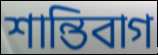
শান্তিবাগ